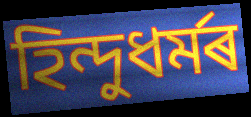
হিন্দুধৰ্মৰ